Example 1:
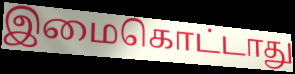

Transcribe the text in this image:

இமைகொட்டாது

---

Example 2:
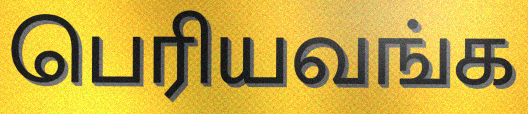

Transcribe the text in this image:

பெரியவங்க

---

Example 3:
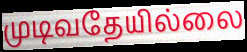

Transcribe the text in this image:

முடிவதேயில்லை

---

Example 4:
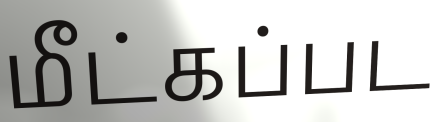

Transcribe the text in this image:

மீட்கப்பட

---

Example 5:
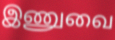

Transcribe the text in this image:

இணுவை